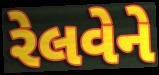
રેલવેને